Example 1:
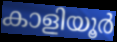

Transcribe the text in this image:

കാളിയൂർ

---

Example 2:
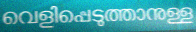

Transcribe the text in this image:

വെളിപ്പെടുത്താനുള്ള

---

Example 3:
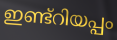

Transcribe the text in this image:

ഇണ്ട്റിയപ്പം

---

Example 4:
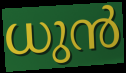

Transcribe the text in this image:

ധുൻ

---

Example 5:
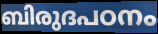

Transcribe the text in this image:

ബിരുദപഠനം